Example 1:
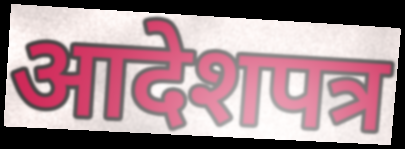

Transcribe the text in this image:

आदेशपत्र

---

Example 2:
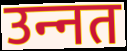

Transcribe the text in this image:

उन्नत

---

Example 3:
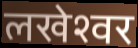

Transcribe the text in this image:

लखेश्वर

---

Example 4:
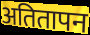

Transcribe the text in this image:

अतितापन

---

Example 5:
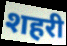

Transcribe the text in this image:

शहरी